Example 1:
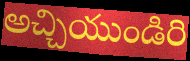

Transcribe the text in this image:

అచ్చియుండిరి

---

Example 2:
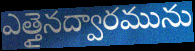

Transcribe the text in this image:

ఎత్తైనద్వారమును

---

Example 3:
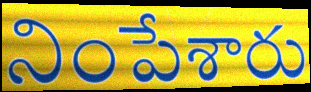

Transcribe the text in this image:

నింపేశారు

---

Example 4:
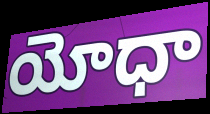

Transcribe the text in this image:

యోధా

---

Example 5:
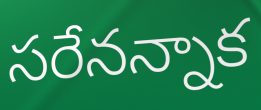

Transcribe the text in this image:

సరేనన్నాక